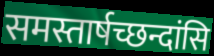
समस्तार्षच्छन्दांसि